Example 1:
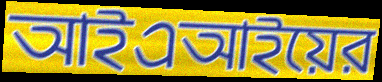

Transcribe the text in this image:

আইএআইয়ের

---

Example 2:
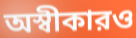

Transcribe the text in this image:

অস্বীকারও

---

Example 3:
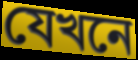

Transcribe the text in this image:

যেখনে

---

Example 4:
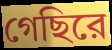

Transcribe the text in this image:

গেছিরে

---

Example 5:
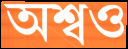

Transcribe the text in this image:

অশ্বও